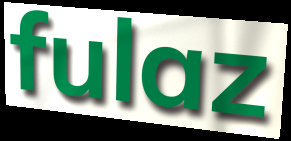
fulaz